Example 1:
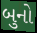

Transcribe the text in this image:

બુનો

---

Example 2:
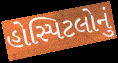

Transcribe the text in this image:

હોસ્પિટલોનું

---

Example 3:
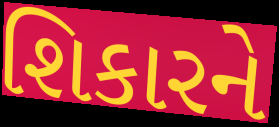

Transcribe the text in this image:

શિકારને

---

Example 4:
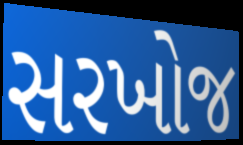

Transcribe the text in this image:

સરખોજ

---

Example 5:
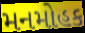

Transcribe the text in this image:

મનમોહક